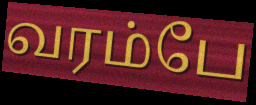
வரம்பே